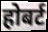
होबर्ट